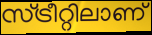
സ്ട്രീറ്റിലാണ്